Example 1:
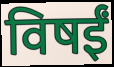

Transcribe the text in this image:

विषईं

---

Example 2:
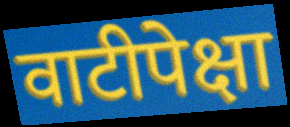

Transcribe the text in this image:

वाटीपेक्षा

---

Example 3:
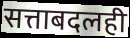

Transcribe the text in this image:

सत्ताबदलही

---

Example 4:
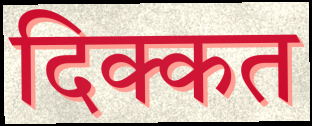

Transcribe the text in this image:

दिक्कत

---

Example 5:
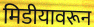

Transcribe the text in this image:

मिडीयावरून